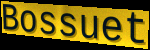
Bossuet